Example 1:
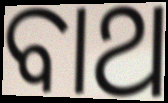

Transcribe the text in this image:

ବାଥ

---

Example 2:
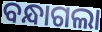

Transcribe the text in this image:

ବନ୍ଧାଗଲା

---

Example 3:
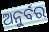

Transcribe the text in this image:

ଅନୁର୍ବର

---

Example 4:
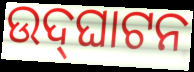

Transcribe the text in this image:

ଉଦ୍‌ଘାଟନ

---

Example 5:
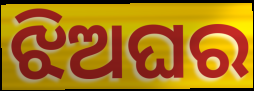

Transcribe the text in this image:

ଝିଅଘର